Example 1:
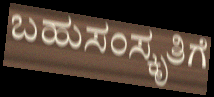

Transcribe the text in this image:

ಬಹುಸಂಸ್ಕೃತಿಗೆ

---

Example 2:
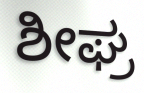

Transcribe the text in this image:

ಶೀಘ್ರ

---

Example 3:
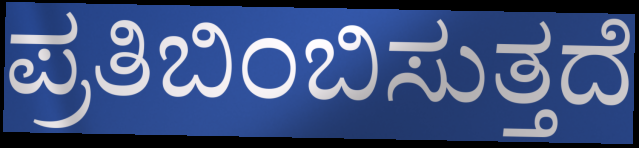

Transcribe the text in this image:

ಪ್ರತಿಬಿಂಬಿಸುತ್ತದೆ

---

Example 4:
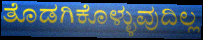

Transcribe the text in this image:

ತೊಡಗಿಕೊಳ್ಳುವುದಿಲ್ಲ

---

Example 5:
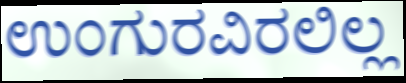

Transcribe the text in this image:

ಉಂಗುರವಿರಲಿಲ್ಲ